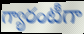
గ్యారంటీగా